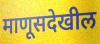
माणूसदेखील